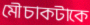
মৌচাকটাকে